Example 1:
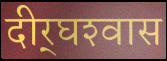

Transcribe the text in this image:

दीर्घश्वास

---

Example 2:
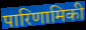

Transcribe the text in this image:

पारिणामिकी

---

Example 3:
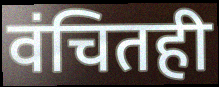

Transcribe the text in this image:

वंचितही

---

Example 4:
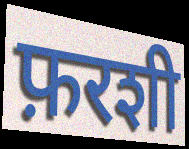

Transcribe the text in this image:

फ़रशी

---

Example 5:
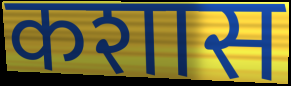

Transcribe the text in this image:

कशास